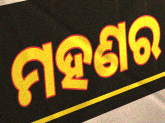
ମହଣର